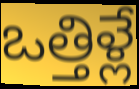
ఒత్తిళ్లే